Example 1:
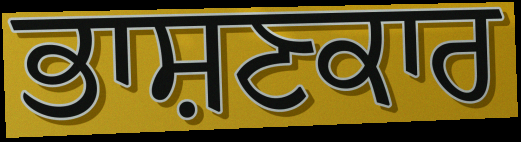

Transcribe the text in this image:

ਭਾਸ਼ਣਕਾਰ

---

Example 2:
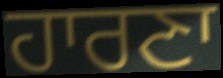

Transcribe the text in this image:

ਹਾਰਣਾ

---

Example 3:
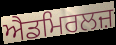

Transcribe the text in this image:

ਐਡਮਿਰਲਜ਼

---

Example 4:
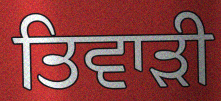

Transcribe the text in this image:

ਤਿਵਾੜੀ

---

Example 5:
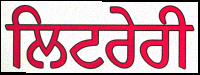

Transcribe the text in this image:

ਲਿਟਰੇਰੀ